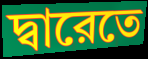
দ্বারেতে